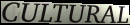
CULTURAL